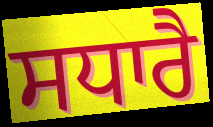
ਸਧਾਰੈ